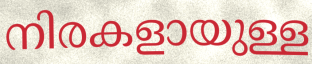
നിരകളായുള്ള